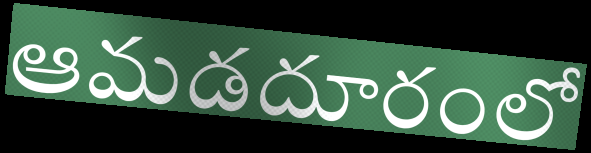
ఆమడదూరంలో